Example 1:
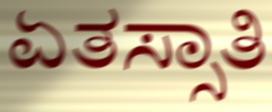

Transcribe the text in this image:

ಏತಸ್ಸಾತಿ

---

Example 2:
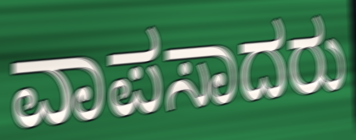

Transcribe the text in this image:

ವಾಪಸಾದರು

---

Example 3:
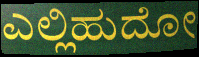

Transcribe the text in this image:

ಎಲ್ಲಿಹುದೋ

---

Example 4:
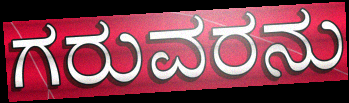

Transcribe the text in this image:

ಗರುವರನು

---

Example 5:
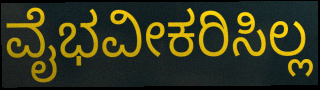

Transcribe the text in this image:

ವೈಭವೀಕರಿಸಿಲ್ಲ